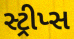
સ્ટ્રીપ્સ